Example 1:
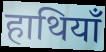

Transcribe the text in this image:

हाथियाँ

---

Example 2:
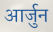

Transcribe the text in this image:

आर्जुन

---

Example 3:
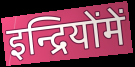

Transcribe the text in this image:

इन्द्रियोंमें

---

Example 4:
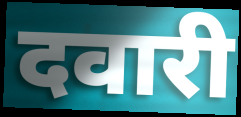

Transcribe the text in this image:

दवारी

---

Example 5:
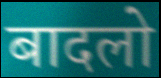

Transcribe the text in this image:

बादलो